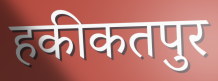
हकीकतपुर